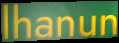
lhanun